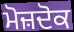
ਮੋਜ਼ਦੋਕ